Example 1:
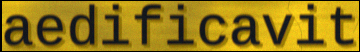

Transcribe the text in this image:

aedificavit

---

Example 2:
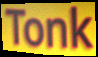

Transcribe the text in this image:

Tonk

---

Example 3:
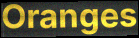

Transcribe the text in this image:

Oranges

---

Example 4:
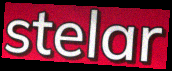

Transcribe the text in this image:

stelar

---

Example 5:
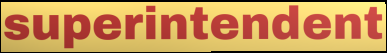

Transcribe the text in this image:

superintendent